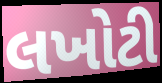
લખોટી